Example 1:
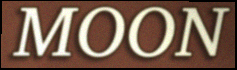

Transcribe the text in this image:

MOON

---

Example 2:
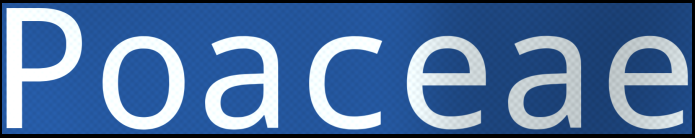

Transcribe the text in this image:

Poaceae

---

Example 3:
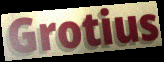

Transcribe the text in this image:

Grotius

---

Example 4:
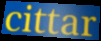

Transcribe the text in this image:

cittar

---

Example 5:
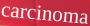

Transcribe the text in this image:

carcinoma